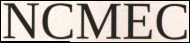
NCMEC